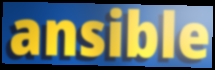
ansible